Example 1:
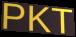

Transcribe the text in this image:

PKT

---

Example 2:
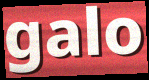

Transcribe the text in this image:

galo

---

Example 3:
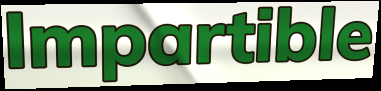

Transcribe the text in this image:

Impartible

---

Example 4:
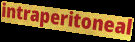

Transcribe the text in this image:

intraperitoneal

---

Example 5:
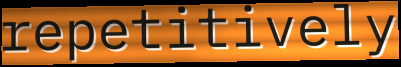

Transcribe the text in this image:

repetitively